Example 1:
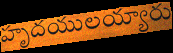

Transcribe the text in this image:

హృదయులయ్యారు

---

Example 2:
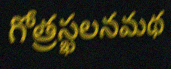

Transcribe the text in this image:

గోత్రస్ఖలనమథ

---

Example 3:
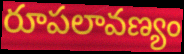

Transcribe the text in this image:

రూపలావణ్యం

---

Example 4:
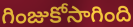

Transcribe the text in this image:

గింజుకోసాగింది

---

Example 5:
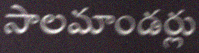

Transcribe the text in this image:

సాలమాండర్లు